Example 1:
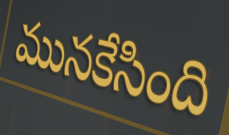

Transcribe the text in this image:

మునకేసింది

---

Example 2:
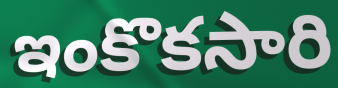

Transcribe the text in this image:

ఇంకొకసారి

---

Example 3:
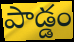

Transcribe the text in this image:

పాడ్డం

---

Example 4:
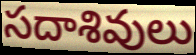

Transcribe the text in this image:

సదాశివులు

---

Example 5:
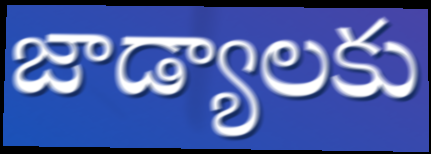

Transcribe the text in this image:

జాడ్యాలకు